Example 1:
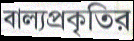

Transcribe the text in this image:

বাল্যপ্রকৃতির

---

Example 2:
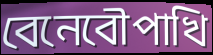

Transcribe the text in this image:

বেনেবৌপাখি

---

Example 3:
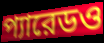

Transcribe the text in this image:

প্যারেডও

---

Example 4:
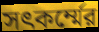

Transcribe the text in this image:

সৎকর্ম্মের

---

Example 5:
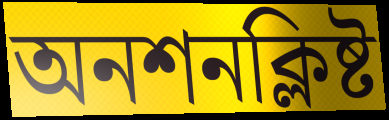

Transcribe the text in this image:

অনশনক্লিষ্ট